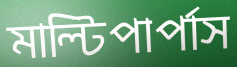
মাল্টিপার্পাস